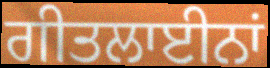
ਗੀਤਲਾਈਨਾਂ